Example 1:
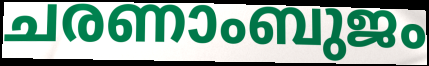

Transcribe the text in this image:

ചരണാംബുജം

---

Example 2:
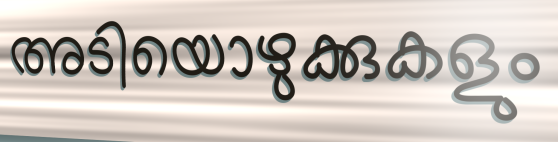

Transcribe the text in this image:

അടിയൊഴുക്കുകളും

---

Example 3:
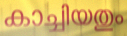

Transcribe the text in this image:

കാച്ചിയതും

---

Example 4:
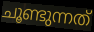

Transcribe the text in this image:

ചൂണ്ടുന്നത്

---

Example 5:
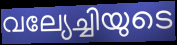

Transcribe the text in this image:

വല്യേച്ചിയുടെ